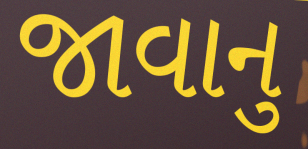
જાવાનુ